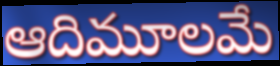
ఆదిమూలమే